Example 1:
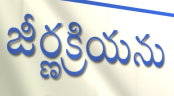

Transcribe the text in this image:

జీర్ణక్రియను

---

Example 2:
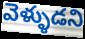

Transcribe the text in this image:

వెళ్ళుడని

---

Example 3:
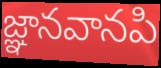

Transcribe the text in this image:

జ్ఞానవానపి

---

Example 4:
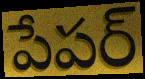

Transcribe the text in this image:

పేపర్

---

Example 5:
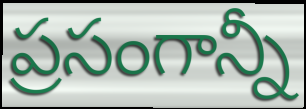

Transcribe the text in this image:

ప్రసంగాన్నీ